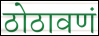
ठोठावणं